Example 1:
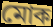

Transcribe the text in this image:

মোক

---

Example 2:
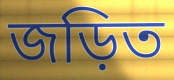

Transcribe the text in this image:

জড়িত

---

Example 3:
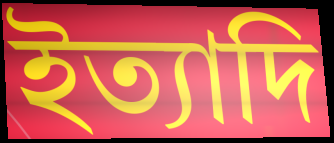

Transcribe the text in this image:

ইত্যাদি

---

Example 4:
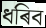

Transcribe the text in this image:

ধৰিব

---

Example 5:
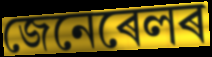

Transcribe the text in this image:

জেনেৰেলৰ